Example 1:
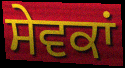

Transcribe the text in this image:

ਸੇਵਕਾਂ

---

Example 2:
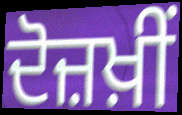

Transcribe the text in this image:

ਦੋਜ਼ਖ਼ੀਂ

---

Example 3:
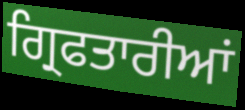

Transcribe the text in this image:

ਗ੍ਰਿਫਤਾਰੀਆਂ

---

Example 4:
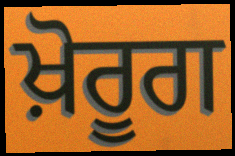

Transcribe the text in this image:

ਖ਼ੋਰੂਗ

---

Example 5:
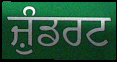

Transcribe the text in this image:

ਜ਼ੁੰਡਰਟ